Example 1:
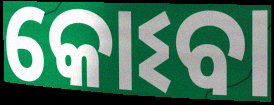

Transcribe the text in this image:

କୋଽବା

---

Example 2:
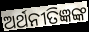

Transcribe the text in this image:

ଅର୍ଥନୀତିଜ୍ଞଙ୍କ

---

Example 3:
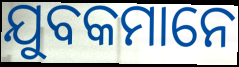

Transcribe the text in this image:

ଯୁବକମାନେ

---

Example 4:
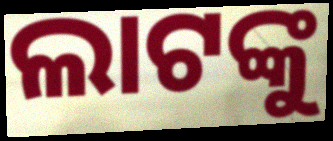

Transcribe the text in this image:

ଲାଟଙ୍କୁ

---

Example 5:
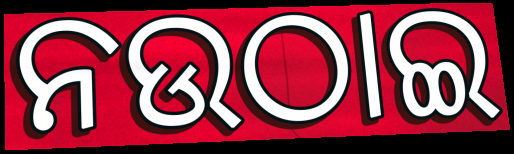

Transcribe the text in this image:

ନଉଠାଇ